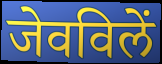
जेवविलें